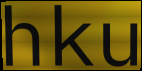
hku